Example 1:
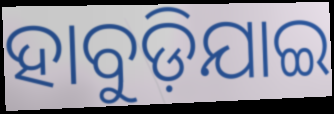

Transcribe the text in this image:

ହାବୁଡ଼ିଯାଇ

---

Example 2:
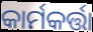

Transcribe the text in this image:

କାର୍ମକର୍ତ୍ତା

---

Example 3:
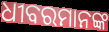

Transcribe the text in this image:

ଧୀବରମାନଙ୍କ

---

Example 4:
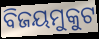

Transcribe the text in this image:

ବିଜୟମୁକୁଟ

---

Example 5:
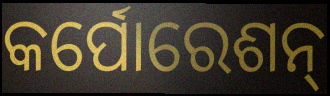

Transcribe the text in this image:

କର୍ପୋରେଶନ୍